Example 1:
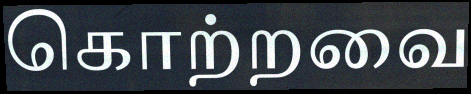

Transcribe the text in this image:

கொற்றவை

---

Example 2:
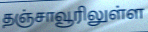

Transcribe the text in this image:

தஞ்சாவூரிலுள்ள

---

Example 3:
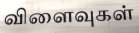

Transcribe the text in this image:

விளைவுகள்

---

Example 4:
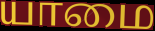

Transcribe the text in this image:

யாமை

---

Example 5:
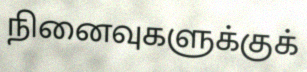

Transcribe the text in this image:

நினைவுகளுக்குக்